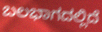
ಬಲಭಾಗದಲ್ಲಿದೆ